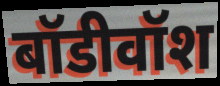
बॉडीवॉश